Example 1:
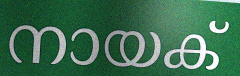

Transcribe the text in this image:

നായക്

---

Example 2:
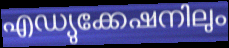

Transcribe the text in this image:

എഡ്യുക്കേഷനിലും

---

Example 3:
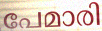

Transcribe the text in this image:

പേമാരി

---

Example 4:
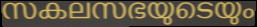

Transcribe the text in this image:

സകലസഭയുടെയും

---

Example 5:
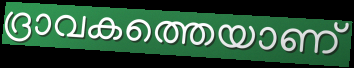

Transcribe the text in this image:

ദ്രാവകത്തെയാണ്